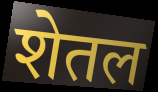
शेतल